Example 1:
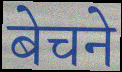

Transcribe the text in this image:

बेचने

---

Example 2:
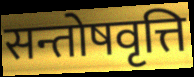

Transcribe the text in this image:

सन्तोषवृत्ति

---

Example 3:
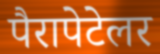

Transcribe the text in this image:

पैरापेटेलर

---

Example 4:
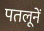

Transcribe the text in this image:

पतलूनें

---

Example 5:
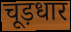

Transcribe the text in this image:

चूड़धार